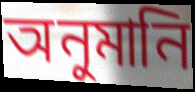
অনুমানি